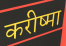
करीष्मा